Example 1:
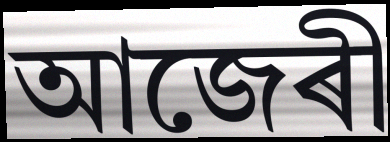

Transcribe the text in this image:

আজেৰী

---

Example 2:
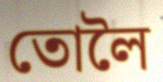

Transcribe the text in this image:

তোলৈ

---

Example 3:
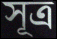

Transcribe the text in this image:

সূত্ৰ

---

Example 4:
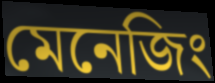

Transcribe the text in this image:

মেনেজিং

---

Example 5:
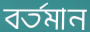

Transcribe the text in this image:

বৰ্তমান